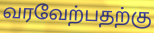
வரவேற்பதற்கு